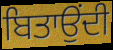
ਬਿਤਾਉਂਦੀ